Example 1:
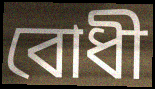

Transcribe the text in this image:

বোধী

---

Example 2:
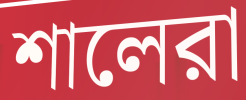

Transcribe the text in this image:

শালেরা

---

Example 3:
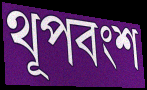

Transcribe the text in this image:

থূপবংশ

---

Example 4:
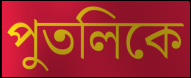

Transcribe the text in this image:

পুতলিকে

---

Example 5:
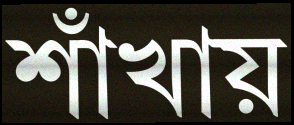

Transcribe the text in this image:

শাঁখায়